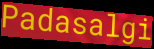
Padasalgi